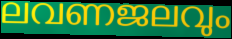
ലവണജലവും